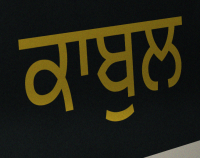
ਕਾਬੁਲ